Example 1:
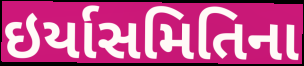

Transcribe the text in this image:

ઇર્યાસમિતિના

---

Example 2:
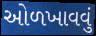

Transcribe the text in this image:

ઓળખાવવું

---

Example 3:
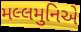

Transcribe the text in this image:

મલ્લમુનિએ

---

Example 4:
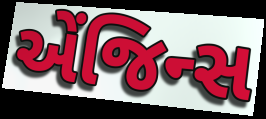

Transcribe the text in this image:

એંજિન્સ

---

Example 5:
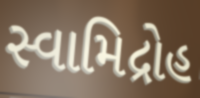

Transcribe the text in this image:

સ્વામિદ્રોહ